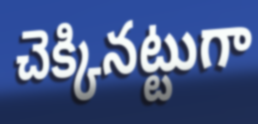
చెక్కినట్టుగా